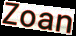
Zoan